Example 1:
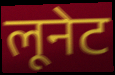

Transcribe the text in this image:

लूनेट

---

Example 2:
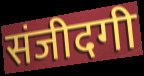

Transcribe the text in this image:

संजीदगी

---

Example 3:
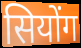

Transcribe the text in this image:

सियोंग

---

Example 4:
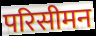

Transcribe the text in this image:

परिसीमन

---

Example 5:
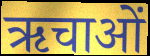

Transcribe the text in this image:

ऋचाओं